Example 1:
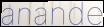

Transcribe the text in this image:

anande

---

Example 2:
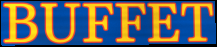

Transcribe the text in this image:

BUFFET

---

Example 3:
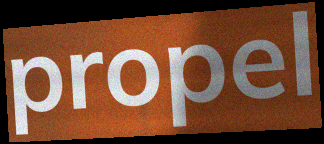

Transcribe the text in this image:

propel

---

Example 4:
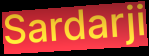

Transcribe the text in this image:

Sardarji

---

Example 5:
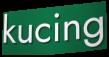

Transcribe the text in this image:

kucing